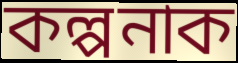
কল্পনাক